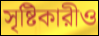
সৃষ্টিকারীও